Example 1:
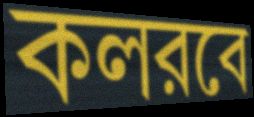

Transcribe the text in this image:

কলরবে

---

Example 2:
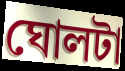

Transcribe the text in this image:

ঘোলটা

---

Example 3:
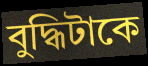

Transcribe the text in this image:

বুদ্ধিটাকে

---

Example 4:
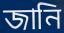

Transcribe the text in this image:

জানি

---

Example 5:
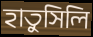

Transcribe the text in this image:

হাতুসিলি